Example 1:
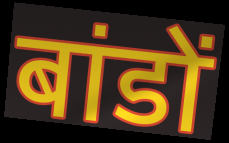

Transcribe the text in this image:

बांडों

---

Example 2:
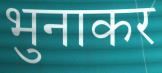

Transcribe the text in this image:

भुनाकर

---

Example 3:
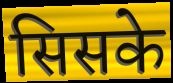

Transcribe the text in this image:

सिसके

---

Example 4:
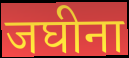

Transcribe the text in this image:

जघीना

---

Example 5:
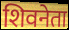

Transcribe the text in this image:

शिवनेता